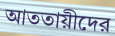
আততায়ীদের